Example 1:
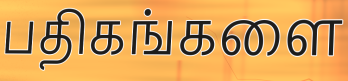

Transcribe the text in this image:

பதிகங்களை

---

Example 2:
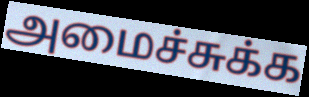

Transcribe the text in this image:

அமைச்சுக்க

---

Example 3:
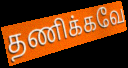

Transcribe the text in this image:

தணிக்கவே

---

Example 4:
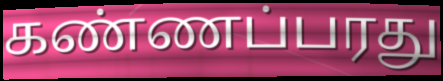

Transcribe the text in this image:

கண்ணப்பரது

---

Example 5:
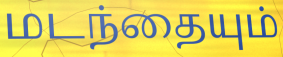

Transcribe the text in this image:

மடந்தையும்